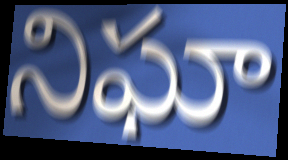
నిఘా